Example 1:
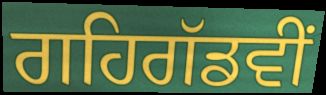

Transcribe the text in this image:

ਗਹਿਗੱਡਵੀਂ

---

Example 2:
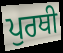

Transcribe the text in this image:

ਪੁਰਥੀ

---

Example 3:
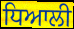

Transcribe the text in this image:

ਧਿਆਲੀ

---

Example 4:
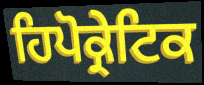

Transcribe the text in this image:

ਹਿਪੋਕ੍ਰੇਟਿਕ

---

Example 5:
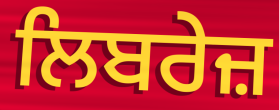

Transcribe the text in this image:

ਲਿਬਰੇਜ਼